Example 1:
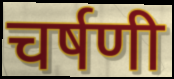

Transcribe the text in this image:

चर्षणी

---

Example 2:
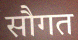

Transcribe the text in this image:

सौगत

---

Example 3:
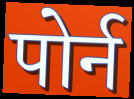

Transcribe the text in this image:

पोर्न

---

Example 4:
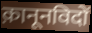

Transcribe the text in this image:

क़ानूनविदों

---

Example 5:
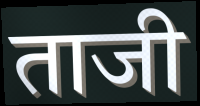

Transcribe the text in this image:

ताजी